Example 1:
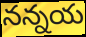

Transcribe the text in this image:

నన్నయ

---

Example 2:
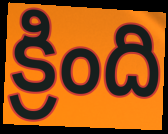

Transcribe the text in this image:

క్రింది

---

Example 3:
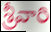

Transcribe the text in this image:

శ్రీవారి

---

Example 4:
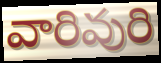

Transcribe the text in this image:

వారివురి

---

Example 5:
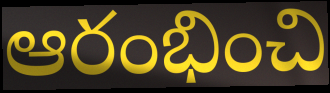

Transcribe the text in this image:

ఆరంభించి